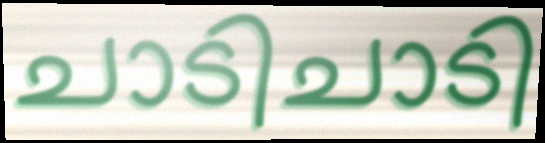
ചാടിചാടി